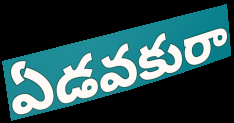
ఏడవకురా